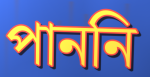
পাননি